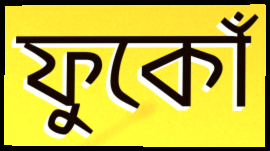
ফুকোঁ